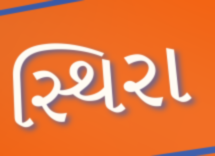
સ્થિરા